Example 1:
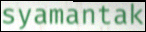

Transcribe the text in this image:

syamantak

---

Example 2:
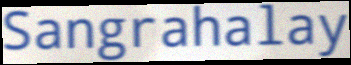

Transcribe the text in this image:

Sangrahalay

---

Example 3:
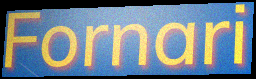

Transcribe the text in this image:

Fornari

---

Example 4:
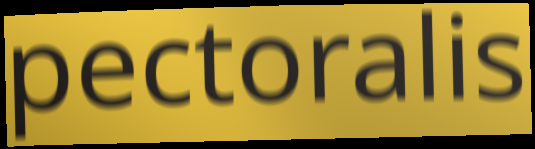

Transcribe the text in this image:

pectoralis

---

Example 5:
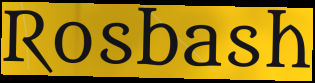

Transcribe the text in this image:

Rosbash